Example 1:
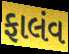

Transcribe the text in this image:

ફાલંવ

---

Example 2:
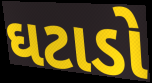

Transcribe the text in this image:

ઘટાડો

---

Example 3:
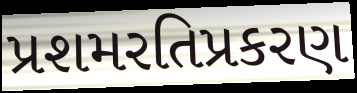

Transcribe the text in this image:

પ્રશમરતિપ્રકરણ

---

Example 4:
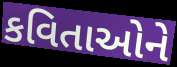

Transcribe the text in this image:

કવિતાઓને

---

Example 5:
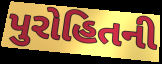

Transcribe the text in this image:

પુરોહિતની